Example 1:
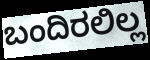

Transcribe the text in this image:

ಬಂದಿರಲಿಲ್ಲ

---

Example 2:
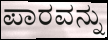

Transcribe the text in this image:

ಪಾರವನ್ನು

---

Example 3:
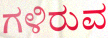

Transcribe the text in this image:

ಗಳಿರುವ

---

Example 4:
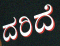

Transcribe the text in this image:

ದರಿದೆ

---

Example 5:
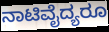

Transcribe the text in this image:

ನಾಟಿವೈದ್ಯರೂ